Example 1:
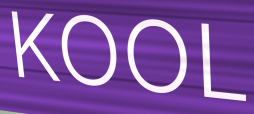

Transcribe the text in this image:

KOOL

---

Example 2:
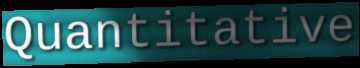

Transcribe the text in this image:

Quantitative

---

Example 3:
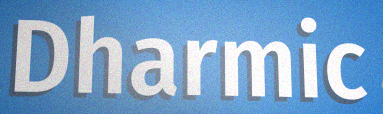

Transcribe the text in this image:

Dharmic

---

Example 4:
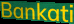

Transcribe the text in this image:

Bankati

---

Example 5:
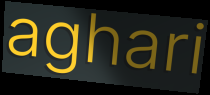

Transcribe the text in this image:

aghari